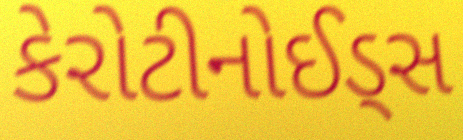
કેરોટીનોઈડ્સ